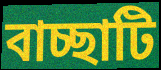
বাচ্ছাটি